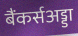
बैंकर्सअड्डा